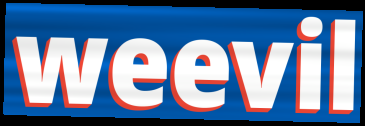
weevil